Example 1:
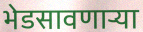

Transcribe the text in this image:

भेडसावणार्‍या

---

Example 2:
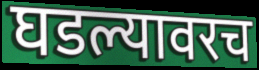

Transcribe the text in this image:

घडल्यावरच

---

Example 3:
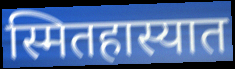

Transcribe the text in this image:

स्मितहास्यात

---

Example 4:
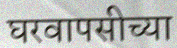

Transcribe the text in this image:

घरवापसीच्या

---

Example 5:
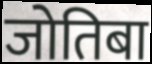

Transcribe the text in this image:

जोतिबा